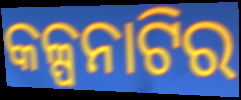
କଳ୍ପନାଟିର